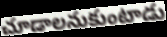
చూడాలనుకుంటాడు